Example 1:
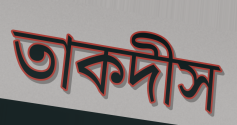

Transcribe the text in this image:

তাকদীস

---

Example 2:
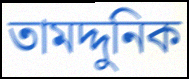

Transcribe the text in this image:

তামদ্দুনিক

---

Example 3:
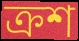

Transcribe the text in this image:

ক্রশ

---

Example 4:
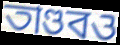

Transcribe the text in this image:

তাণ্ডবও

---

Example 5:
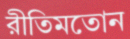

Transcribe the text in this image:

রীতিমতোন